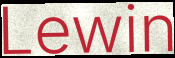
Lewin